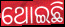
ଥୋଇଛି